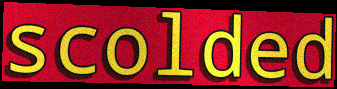
scolded